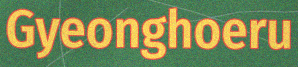
Gyeonghoeru